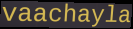
vaachayla